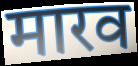
मारव